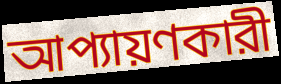
আপ্যায়ণকারী